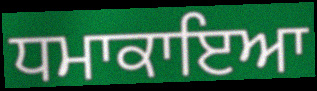
ਧਮਾਕਾਇਆ